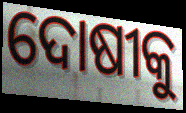
ଦୋଷୀକୁ